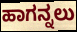
ಹಾಗನ್ನಲು